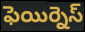
ఫెయిర్నెస్